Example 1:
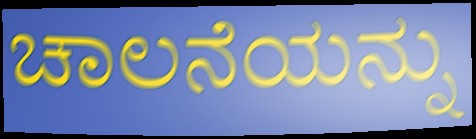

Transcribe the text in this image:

ಚಾಲನೆಯನ್ನು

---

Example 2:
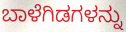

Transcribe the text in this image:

ಬಾಳೆಗಿಡಗಳನ್ನು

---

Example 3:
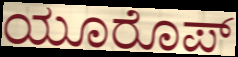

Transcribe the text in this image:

ಯೂರೊಪ್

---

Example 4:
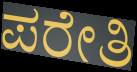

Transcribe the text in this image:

ಪರೇತಿ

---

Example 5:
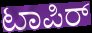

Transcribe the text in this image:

ಟಾಪಿರ್